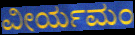
ವೀರ್ಯಮಂ